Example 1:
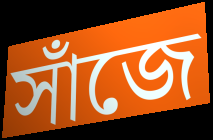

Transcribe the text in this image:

সাঁজে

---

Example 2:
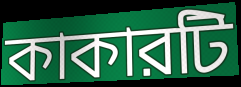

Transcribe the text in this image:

কাকারটি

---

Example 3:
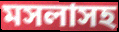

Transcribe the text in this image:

মসলাসহ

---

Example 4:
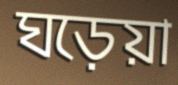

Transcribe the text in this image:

ঘড়েয়া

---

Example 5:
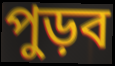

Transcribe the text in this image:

পুড়ব